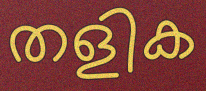
തളിക